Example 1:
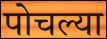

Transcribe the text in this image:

पोचल्या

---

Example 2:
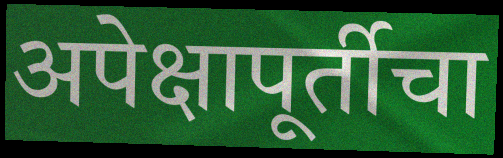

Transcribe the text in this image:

अपेक्षापूर्तीचा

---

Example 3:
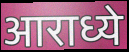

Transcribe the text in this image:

आराध्ये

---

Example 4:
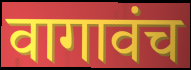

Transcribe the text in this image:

वागावंच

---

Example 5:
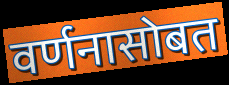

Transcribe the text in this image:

वर्णनासोबत